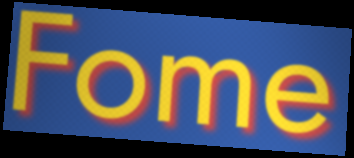
Fome